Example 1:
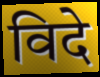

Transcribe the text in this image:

विदे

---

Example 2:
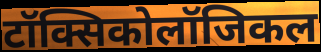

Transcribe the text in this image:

टॉक्सिकोलॉजिकल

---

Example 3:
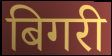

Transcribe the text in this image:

बिगरी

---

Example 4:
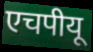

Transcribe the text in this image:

एचपीयू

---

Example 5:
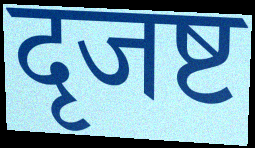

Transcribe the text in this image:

दृजष्ट